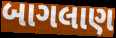
બાગલાણ